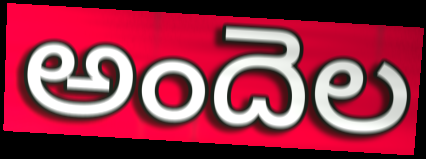
అందెల